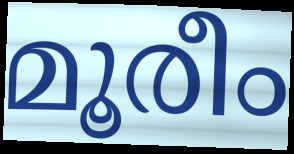
മൂരീം